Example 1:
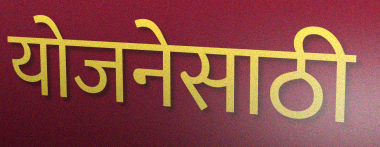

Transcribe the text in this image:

योजनेसाठी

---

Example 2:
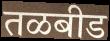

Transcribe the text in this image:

तळबीड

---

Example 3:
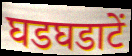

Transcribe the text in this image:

घडघडाटें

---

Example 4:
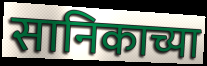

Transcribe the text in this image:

सानिकाच्या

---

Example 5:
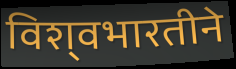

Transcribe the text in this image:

विश्वभारतीने